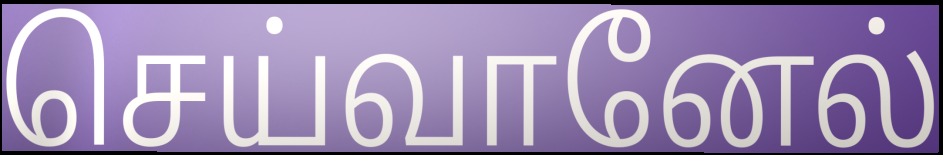
செய்வானேல்